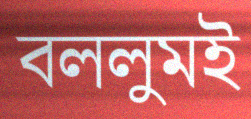
বললুমই